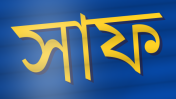
সাফ